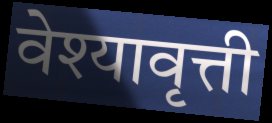
वेश्यावृत्ती